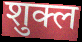
शुक्‍ल